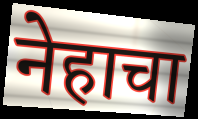
नेहाचा